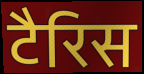
टैरिस